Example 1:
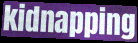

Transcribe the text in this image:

kidnapping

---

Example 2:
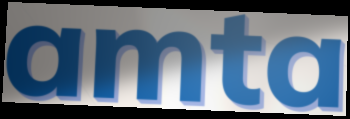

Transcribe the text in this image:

amta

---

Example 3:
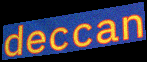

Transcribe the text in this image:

deccan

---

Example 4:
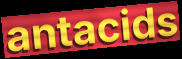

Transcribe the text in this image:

antacids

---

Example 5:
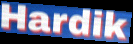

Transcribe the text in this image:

Hardik